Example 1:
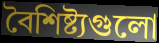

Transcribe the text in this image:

বৈশিষ্ট্যগুলো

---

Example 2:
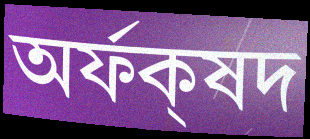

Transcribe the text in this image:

অর্ফক্‌ষদ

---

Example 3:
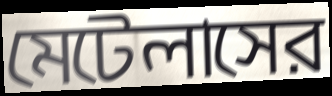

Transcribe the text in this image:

মেটেলাসের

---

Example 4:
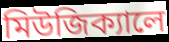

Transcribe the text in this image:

মিউজিক্যালে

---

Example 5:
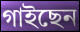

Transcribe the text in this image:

গাইছেন